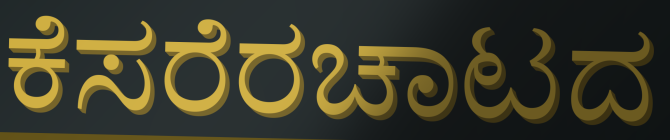
ಕೆಸರೆರಚಾಟದ